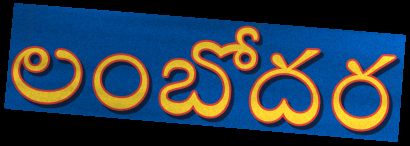
లంబోదర